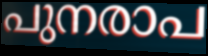
പുനരാപ